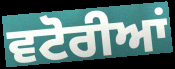
ਵਟੋਰੀਆਂ